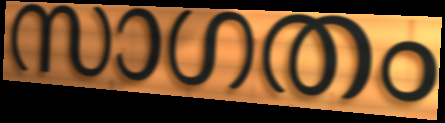
സാഗതം